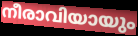
നീരാവിയായും